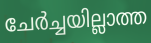
ചേർച്ചയില്ലാത്ത